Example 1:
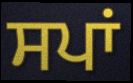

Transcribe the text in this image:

ਸਪਾਂ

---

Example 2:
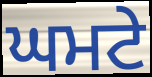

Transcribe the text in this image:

ਘਮਟੇ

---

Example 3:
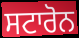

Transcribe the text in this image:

ਸਟਾਰੋਨ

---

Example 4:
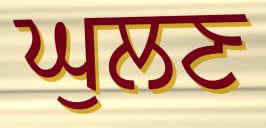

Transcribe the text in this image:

ਘੁਲਣ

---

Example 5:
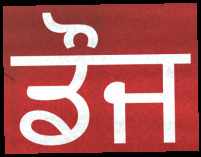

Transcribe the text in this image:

ਡੌਜ